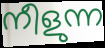
നീളുന്ന